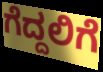
ಗೆದ್ದಲಿಗೆ